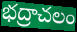
భద్రాచలం